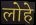
लोहे